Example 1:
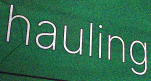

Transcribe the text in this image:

hauling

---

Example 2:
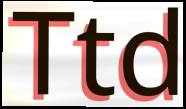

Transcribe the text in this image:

Ttd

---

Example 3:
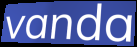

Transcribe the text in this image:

vanda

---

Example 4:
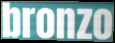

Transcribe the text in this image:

bronzo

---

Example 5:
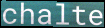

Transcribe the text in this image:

chalte